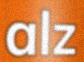
alz